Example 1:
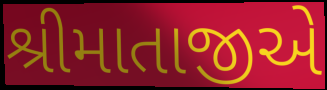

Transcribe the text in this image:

શ્રીમાતાજીએ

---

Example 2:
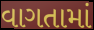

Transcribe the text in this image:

વાગતામાં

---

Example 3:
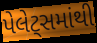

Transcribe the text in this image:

પેલેટ્સમાંથી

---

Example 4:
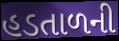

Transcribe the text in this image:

હડતાળની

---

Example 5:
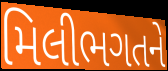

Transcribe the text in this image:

મિલીભગતને